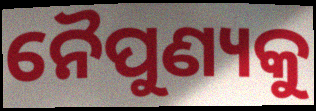
ନୈପୁଣ୍ୟକୁ